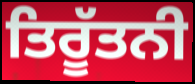
ਤਿਰੂੱਤਨੀ